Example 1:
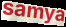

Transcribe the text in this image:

samya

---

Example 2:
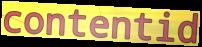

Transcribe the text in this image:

contentid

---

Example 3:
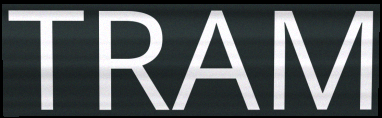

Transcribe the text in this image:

TRAM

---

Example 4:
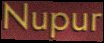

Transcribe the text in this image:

Nupur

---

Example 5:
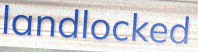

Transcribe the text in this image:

landlocked